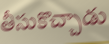
తీసుకొచ్చాడు